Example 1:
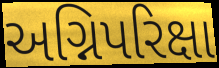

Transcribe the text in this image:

અગ્નિપરિક્ષા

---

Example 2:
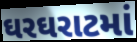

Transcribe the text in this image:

ઘરઘરાટમાં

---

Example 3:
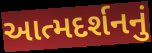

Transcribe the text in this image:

આત્મદર્શનનું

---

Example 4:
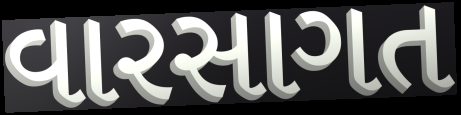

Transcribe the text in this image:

વારસાગત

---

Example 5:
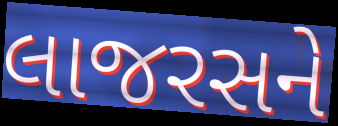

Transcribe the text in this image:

લાજરસને